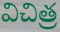
విచిత్ర